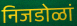
निजडोळां